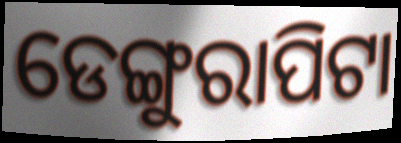
ଡେଙ୍ଗୁରାପିଟା